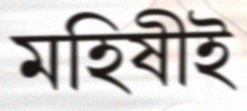
মহিষীই